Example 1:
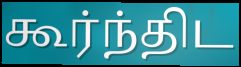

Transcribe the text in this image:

கூர்ந்திட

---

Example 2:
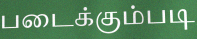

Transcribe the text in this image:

படைக்கும்படி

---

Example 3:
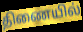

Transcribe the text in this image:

திணையில்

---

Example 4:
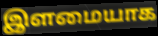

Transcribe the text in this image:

இளமையாக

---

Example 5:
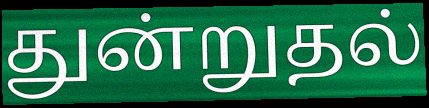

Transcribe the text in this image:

துன்றுதல்